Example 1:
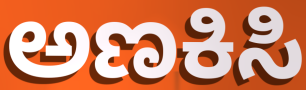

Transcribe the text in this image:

ಅಣಕಿಸಿ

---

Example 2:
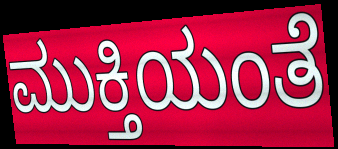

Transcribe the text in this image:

ಮುಕ್ತಿಯಂತೆ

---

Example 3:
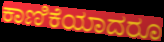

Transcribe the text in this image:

ಕಾಣಿಕೆಯಾದರೂ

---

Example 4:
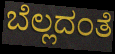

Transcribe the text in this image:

ಬೆಲ್ಲದಂತೆ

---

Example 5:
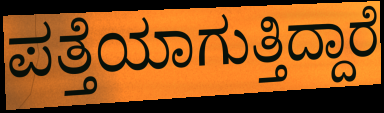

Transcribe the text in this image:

ಪತ್ತೆಯಾಗುತ್ತಿದ್ದಾರೆ